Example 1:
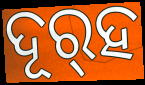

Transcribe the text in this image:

ଦୂର୍‌ହ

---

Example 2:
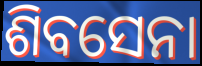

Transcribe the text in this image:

ଶିବସେନା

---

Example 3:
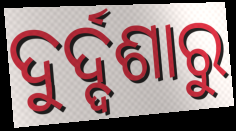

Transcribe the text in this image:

ଦୁର୍ଦ୍ଦଶାରୁ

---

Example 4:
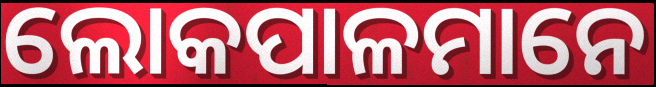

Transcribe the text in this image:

ଲୋକପାଳମାନେ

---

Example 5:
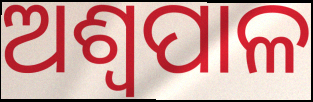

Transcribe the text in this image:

ଅଶ୍ୱପାଳ